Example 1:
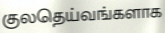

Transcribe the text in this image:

குலதெய்வங்களாக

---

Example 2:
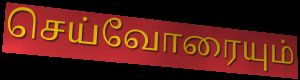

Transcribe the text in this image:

செய்வோரையும்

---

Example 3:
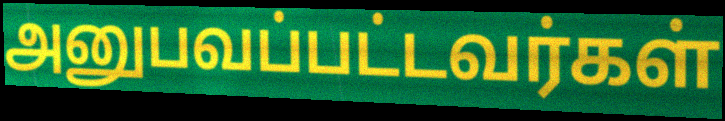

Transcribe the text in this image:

அனுபவப்பட்டவர்கள்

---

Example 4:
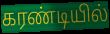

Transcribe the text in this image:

கரண்டியில்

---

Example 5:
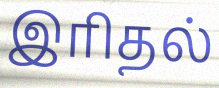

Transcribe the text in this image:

இரிதல்